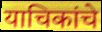
याचिकांचे